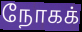
நோகக்